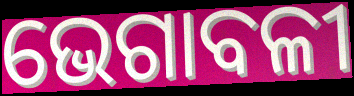
ଭେଗାବଳୀ